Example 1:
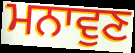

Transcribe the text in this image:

ਮਨਾਵੁਣ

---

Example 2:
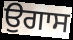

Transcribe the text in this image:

ਉਗਾਸ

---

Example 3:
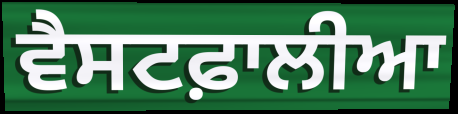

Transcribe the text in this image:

ਵੈਸਟਫ਼ਾਲੀਆ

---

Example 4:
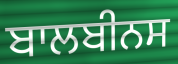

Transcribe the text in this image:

ਬਾਲਬੀਨਸ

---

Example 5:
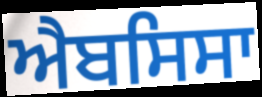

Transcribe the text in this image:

ਐਬਸਿਸਾ